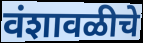
वंशावळीचे